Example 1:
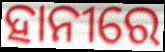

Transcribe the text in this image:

ହାନୀରେ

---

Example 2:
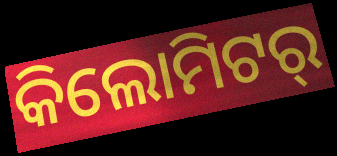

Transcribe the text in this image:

କିଲୋମିଟର୍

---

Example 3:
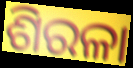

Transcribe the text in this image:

ଶିରଳା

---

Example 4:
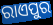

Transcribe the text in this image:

ରାଏପୁର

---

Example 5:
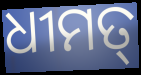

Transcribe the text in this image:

ଧୀମତ୍